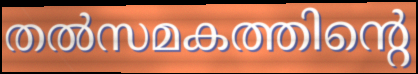
തൽസമകത്തിന്റെ